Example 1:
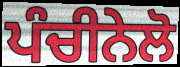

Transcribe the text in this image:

ਪੰਚੀਨੇਲੋ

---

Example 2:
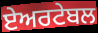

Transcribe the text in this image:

ਏਅਰਟੇਬਲ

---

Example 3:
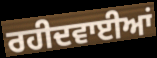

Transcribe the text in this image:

ਰਹੀਦਵਾਈਆਂ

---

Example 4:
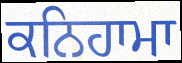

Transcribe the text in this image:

ਕਨਿਹਾਮਾ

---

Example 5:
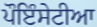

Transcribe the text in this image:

ਪੌਇੰਸੇਟੀਆ